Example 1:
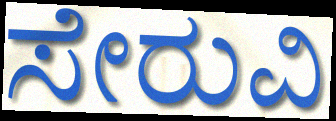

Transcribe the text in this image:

ಸೇರುವಿ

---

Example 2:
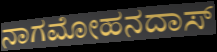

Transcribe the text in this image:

ನಾಗಮೋಹನದಾಸ್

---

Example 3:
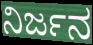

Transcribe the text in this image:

ನಿರ್ಜನ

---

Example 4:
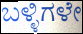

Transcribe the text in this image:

ಬಳ್ಳಿಗಳೇ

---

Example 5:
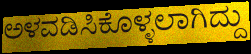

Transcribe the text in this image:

ಅಳವಡಿಸಿಕೊಳ್ಳಲಾಗಿದ್ದು